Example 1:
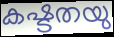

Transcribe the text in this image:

കഷ്ടതയു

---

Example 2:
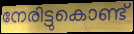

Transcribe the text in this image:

നേരിട്ടുകൊണ്ട്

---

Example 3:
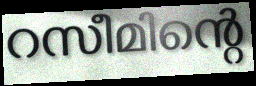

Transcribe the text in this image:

റസീമിന്റെ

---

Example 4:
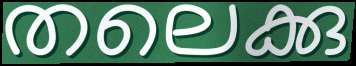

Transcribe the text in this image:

തലെക്കു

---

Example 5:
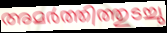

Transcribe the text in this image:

അമർത്തിത്തുടച്ചു